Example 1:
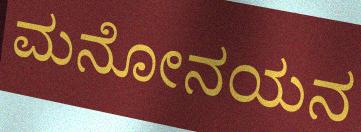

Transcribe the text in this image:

ಮನೋನಯನ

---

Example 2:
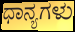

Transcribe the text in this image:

ಧಾನ್ಯಗಳು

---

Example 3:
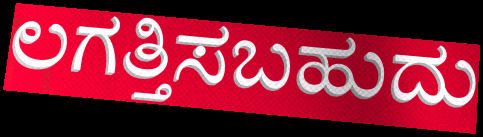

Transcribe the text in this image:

ಲಗತ್ತಿಸಬಹುದು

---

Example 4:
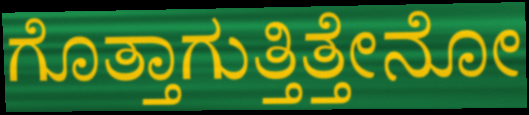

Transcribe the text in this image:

ಗೊತ್ತಾಗುತ್ತಿತ್ತೇನೋ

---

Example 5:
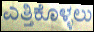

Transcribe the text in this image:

ಎತ್ತಿಕೊಳ್ಳಲು